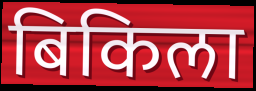
बिकिला